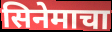
सिनेमाचा